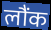
लौंक